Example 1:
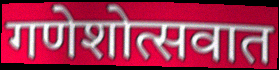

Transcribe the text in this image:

गणेशोत्सवात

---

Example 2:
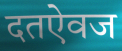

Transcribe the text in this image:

दतऐवज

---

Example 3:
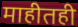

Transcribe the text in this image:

माहीतही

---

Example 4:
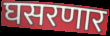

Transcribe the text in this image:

घसरणार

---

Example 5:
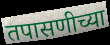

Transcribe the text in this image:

तपासणीच्या